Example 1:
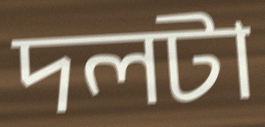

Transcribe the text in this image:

দলটা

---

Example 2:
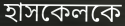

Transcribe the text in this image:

হাসকেলকে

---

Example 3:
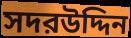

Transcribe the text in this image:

সদরউদ্দিন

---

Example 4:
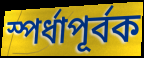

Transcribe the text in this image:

স্পর্ধাপূর্বক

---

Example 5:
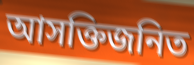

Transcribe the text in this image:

আসক্তিজনিত